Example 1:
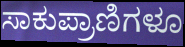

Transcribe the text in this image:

ಸಾಕುಪ್ರಾಣಿಗಳೂ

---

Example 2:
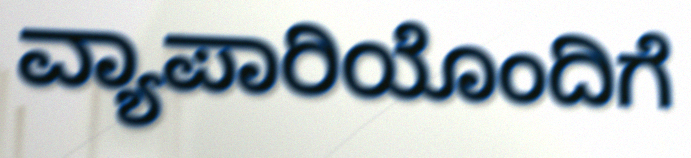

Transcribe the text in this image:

ವ್ಯಾಪಾರಿಯೊಂದಿಗೆ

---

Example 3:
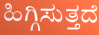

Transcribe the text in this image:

ಹಿಗ್ಗಿಸುತ್ತದೆ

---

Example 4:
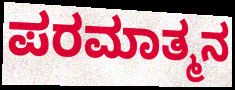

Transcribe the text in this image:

ಪರಮಾತ್ಮನ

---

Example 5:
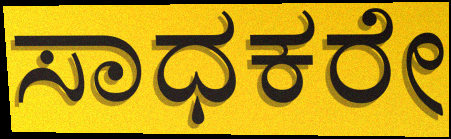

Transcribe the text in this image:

ಸಾಧಕರೇ